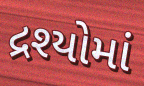
દ્રશ્યોમાં